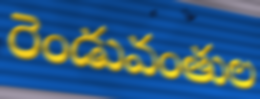
రెండువంతుల